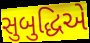
સુબુદ્ધિએ